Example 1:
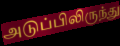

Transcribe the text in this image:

அடுப்பிலிருந்து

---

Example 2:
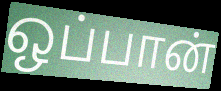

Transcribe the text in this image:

ஒப்பான்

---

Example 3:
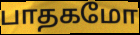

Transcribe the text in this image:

பாதகமோ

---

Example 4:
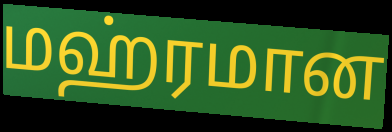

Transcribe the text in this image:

மஹ்ரமான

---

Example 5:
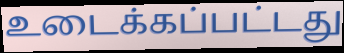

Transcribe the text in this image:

உடைக்கப்பட்டது